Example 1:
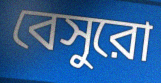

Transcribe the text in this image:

বেসুরো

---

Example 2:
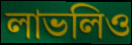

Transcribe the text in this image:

লাভলিও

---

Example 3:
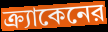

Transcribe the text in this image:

ক্র্যাকেনের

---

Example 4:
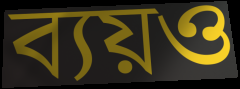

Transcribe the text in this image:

ব্যয়ও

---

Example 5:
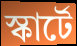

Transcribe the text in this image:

স্কার্টে